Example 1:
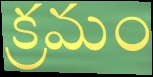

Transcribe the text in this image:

క్రమం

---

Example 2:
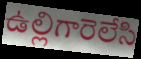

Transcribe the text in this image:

ఉల్లిగారెలేసి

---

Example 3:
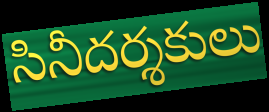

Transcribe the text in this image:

సినీదర్శకులు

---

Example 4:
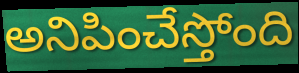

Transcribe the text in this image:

అనిపించేస్తోంది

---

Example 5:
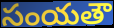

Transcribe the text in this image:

సంయతౌ